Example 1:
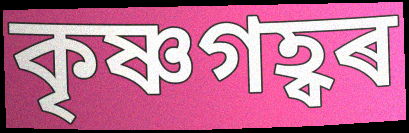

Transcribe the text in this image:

কৃষ্ণগহ্বৰ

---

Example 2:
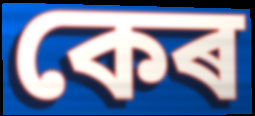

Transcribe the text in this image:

কেৰ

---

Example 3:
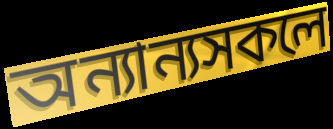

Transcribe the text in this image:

অন্যান্যসকলে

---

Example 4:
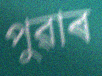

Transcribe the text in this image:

পুৱাৰ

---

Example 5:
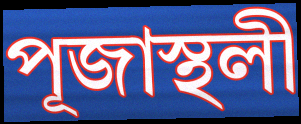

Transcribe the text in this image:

পূজাস্থলী